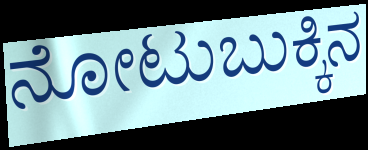
ನೋಟುಬುಕ್ಕಿನ